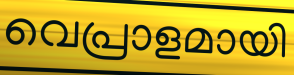
വെപ്രാളമായി